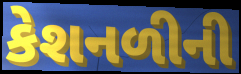
કેશનળીની